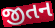
જીતન